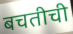
बचतीची